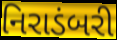
નિરાડંબરી